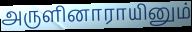
அருளினாராயினும்